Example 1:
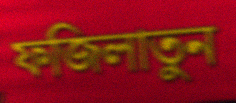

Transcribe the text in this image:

ফজিলাতুন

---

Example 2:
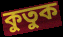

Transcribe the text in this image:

কুতুক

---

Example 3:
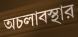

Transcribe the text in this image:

অচলাবস্থার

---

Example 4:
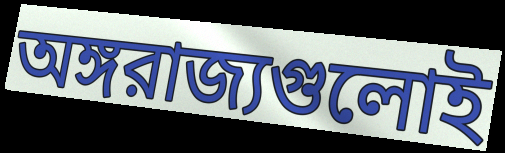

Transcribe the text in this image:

অঙ্গরাজ্যগুলোই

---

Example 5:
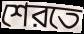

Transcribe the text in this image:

শেরতে